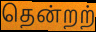
தென்றற்